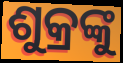
ଶୁକ୍ରଙ୍କୁ